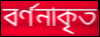
বর্ণনাকৃত